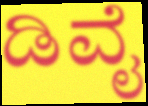
ಡಿವೈ